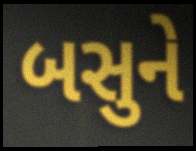
બસુને